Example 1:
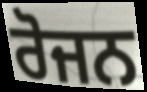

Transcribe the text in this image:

ਰੋਜਨ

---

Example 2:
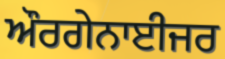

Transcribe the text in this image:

ਔਰਗੇਨਾਈਜਰ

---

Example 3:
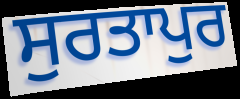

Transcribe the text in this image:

ਸੁਰਤਾਪੁਰ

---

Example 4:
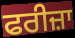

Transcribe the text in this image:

ਫਰੀਜ਼ਾ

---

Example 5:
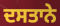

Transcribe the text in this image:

ਦਸਤਾਨੇ